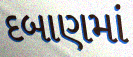
દબાણમાં